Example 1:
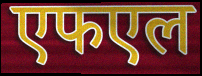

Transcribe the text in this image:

एफएल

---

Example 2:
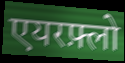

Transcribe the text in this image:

एयरफ़्लो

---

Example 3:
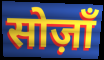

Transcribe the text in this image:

सोज़ाँ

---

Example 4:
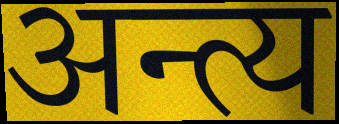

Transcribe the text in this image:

अन्त्य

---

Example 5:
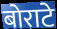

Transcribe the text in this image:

बोराटे